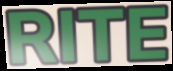
RITE